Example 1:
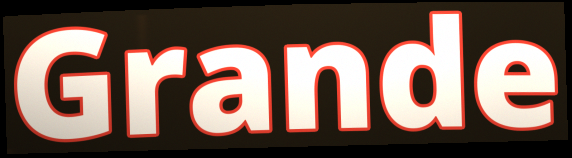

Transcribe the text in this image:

Grande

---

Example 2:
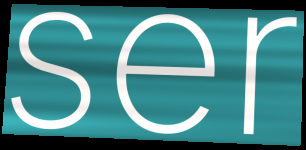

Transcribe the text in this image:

ser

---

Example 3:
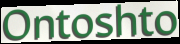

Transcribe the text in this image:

Ontoshto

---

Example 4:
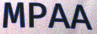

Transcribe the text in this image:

MPAA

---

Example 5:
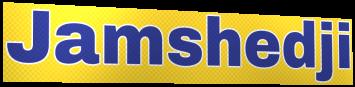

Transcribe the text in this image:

Jamshedji